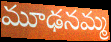
మూఢనమ్మ